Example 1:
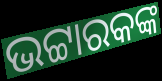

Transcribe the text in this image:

ଭଟ୍ଟାରକଙ୍କ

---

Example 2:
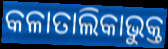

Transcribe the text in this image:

କଳାତାଲିକାଭୁକ୍ତ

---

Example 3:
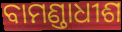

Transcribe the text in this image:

ବାମଣ୍ଡାଧୀଶ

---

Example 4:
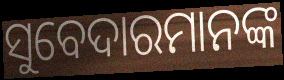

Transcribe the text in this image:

ସୁବେଦାରମାନଙ୍କ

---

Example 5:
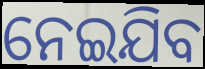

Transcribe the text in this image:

ନେଇଯିବ